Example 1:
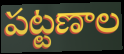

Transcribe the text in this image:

పట్టణాల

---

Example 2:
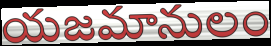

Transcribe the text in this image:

యజమానులం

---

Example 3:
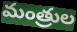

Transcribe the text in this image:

మంత్రుల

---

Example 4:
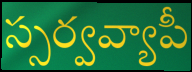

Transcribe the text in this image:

స్సర్వవ్యాపీ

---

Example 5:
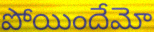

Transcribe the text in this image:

పోయిందేమో